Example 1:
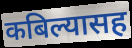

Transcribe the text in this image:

कबिल्यासह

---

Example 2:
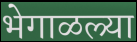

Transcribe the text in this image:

भेगाळल्या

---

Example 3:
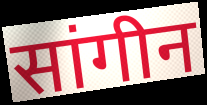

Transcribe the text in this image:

सांगीन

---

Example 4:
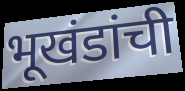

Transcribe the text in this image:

भूखंडांची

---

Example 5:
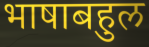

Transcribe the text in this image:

भाषाबहुल